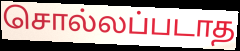
சொல்லப்படாத